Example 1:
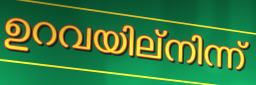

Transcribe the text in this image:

ഉറവയില്നിന്ന്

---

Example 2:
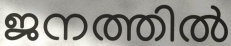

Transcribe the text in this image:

ജനത്തിൽ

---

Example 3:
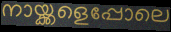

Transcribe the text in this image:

നായ്ക്കളെപ്പോലെ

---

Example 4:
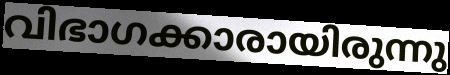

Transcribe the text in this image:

വിഭാഗക്കാരായിരുന്നു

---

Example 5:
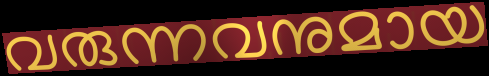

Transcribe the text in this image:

വരുന്നവനുമായ